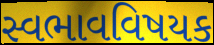
સ્વભાવવિષયક